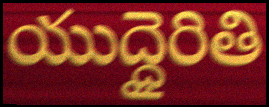
యుద్ధైరితి